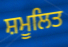
ਸ਼ਮੂਲਿਤ